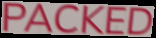
PACKED